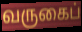
வருகைப்